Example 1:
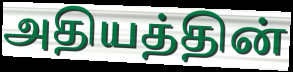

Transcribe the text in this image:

அதியத்தின்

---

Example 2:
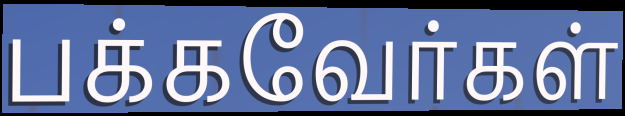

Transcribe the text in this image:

பக்கவேர்கள்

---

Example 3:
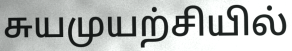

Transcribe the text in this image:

சுயமுயற்சியில்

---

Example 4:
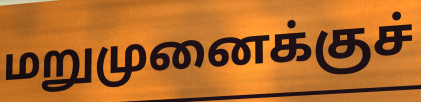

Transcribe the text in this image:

மறுமுனைக்குச்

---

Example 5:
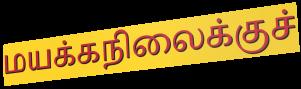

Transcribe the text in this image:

மயக்கநிலைக்குச்